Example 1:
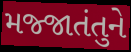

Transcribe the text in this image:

મજ્જાતંતુને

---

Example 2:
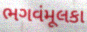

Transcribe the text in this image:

ભગવંમૂલકા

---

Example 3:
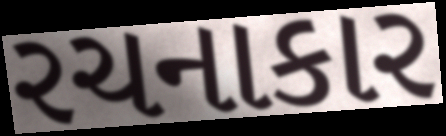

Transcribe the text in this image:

રચનાકાર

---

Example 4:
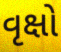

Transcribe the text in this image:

વૃક્ષો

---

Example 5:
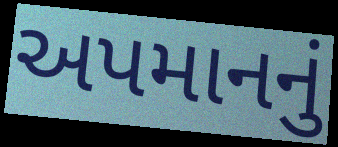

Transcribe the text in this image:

અપમાનનું